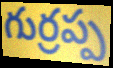
గుర్రప్ప